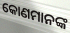
କୋଣମାନଙ୍କ